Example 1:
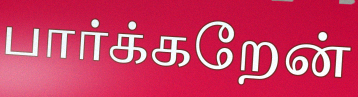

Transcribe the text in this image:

பார்க்கறேன்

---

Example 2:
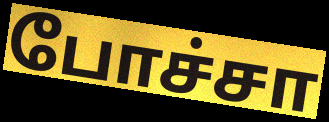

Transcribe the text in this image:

போச்சா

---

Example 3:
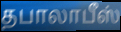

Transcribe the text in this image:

தபாலாபீஸ்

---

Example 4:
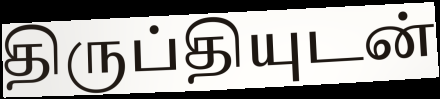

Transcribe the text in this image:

திருப்தியுடன்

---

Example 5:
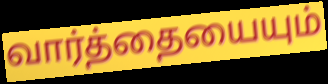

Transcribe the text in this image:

வார்த்தையையும்